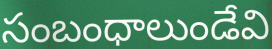
సంబంధాలుండేవి